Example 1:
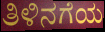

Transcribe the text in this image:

ತಿಳಿನಗೆಯ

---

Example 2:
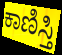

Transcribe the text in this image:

ಕಾಣಿಸ್ತಿ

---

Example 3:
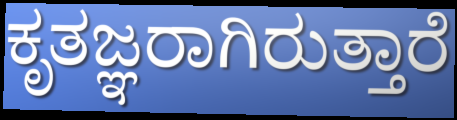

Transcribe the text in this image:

ಕೃತಜ್ಞರಾಗಿರುತ್ತಾರೆ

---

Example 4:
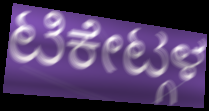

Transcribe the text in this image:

ಟಿಕೇಟ್ಗಳ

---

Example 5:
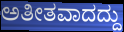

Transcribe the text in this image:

ಅತೀತವಾದದ್ದು